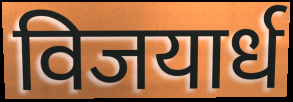
विजयार्ध